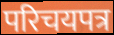
परिचयपत्र